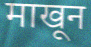
माखून